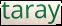
taray